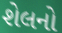
શેલનો